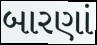
બારણાં